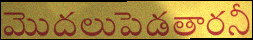
మొదలుపెడతారనీ